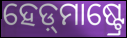
ହେଡ଼୍‌ମାଷ୍ଟ୍ରେ